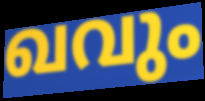
ഖവും